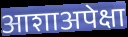
आशाअपेक्षा